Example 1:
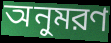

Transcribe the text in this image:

অনুমরণ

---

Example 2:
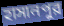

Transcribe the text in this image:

হাসানপুর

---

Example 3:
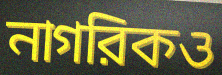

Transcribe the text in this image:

নাগরিকও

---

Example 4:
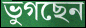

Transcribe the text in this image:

ভুগছেন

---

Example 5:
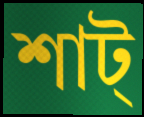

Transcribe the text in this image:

শাট্